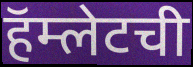
हॅम्लेटची